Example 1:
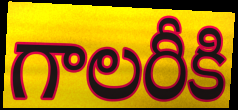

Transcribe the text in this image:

గాలరీకి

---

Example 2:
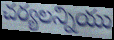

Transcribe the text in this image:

చర్యలన్నియు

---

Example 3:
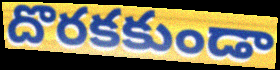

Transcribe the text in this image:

దొరకకుండా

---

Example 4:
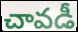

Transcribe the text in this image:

చావడీ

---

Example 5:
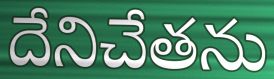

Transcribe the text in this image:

దేనిచేతను